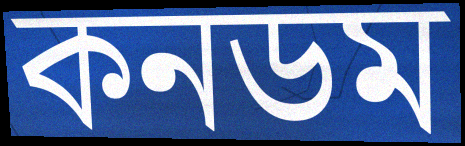
কনডম